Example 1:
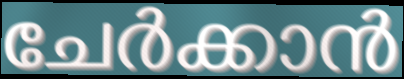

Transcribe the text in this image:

ചേർക്കാൻ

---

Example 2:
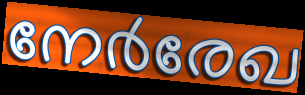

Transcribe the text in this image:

നേർരേഖ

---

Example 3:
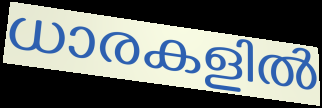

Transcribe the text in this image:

ധാരകളിൽ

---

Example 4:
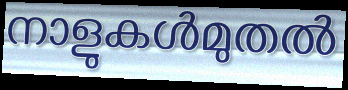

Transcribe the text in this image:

നാളുകൾമുതൽ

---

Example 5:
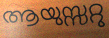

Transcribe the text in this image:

ആയുസ്സറ്റു